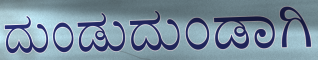
ದುಂಡುದುಂಡಾಗಿ